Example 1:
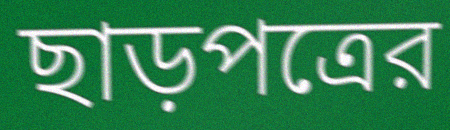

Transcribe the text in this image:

ছাড়পত্রের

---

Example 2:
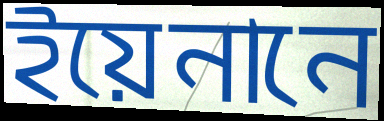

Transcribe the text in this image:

ইয়েনানে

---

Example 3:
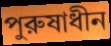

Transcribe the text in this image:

পুরুষাধীন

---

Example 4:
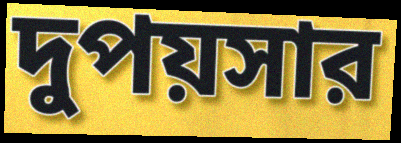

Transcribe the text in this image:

দুপয়সার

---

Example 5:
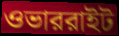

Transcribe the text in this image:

ওভাররাইট